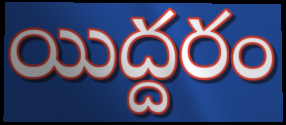
యిద్దరం